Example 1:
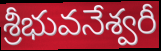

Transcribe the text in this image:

శ్రీభువనేశ్వరీ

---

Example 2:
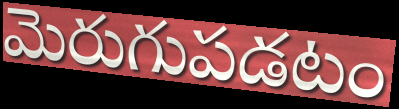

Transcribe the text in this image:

మెరుగుపడటం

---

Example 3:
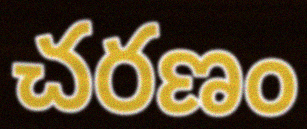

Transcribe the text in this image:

చరణం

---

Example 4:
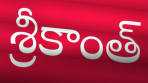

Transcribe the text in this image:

శ్రీకాంత్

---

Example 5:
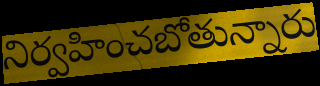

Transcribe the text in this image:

నిర్వహించబోతున్నారు